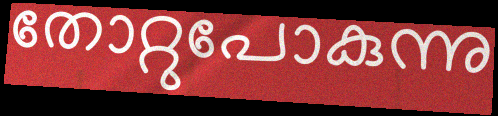
തോറ്റുപോകുന്നു